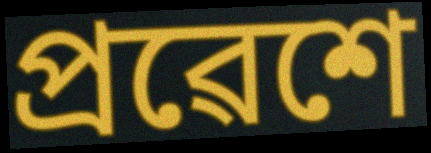
প্ৰৱেশে